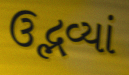
ઉદ્ભવ્યાં